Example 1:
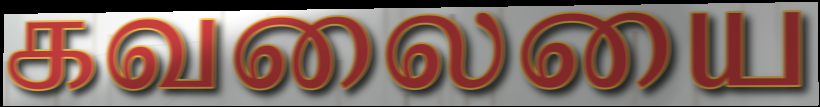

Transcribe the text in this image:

கவலையை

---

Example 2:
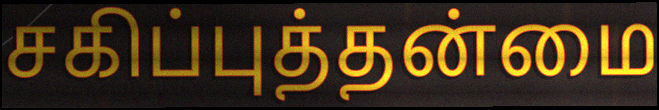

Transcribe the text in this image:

சகிப்புத்தன்மை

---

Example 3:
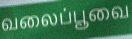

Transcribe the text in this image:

வலைப்பூவை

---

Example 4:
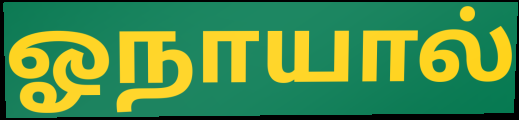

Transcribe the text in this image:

ஓநாயால்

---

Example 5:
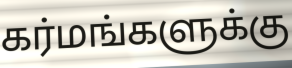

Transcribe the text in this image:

கர்மங்களுக்கு